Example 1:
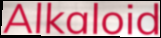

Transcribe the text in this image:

Alkaloid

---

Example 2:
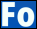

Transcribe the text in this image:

Fo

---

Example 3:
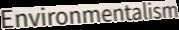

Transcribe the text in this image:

Environmentalism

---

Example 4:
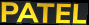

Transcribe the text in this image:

PATEL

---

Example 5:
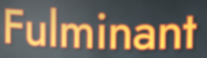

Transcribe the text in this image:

Fulminant